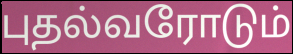
புதல்வரோடும்